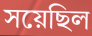
সয়েছিল